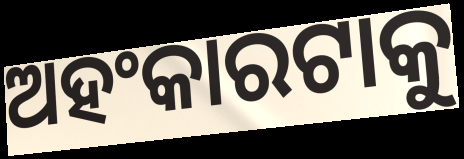
ଅହଂକାରଟାକୁ